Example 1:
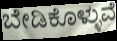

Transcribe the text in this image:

ಬೇಡಿಕೊಳ್ಳುವೆ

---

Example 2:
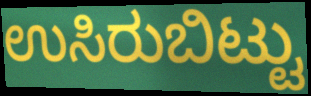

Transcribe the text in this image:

ಉಸಿರುಬಿಟ್ಟು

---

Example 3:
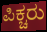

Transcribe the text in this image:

ಪಿಕ್ಚರು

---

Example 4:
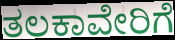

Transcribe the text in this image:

ತಲಕಾವೇರಿಗೆ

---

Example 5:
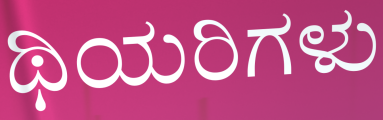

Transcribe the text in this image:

ಥಿಯರಿಗಳು